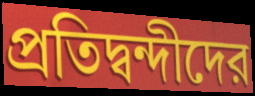
প্রতিদ্বন্দীদের